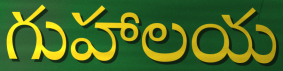
గుహాలయ